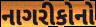
નાગરીકોનો